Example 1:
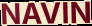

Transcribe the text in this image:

NAVIN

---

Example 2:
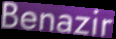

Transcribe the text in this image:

Benazir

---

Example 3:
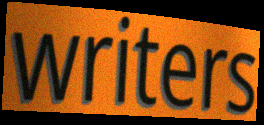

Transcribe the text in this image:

writers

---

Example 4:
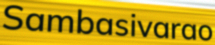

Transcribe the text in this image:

Sambasivarao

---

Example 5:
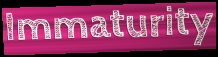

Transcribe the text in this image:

Immaturity